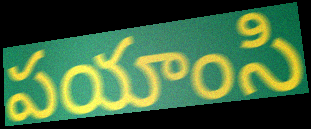
పయాంసి